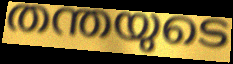
തന്തയുടെ